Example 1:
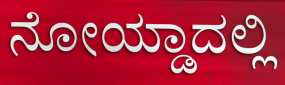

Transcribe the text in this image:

ನೋಯ್ಡಾದಲ್ಲಿ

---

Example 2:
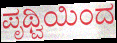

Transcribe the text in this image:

ಪೃಥ್ವಿಯಿಂದ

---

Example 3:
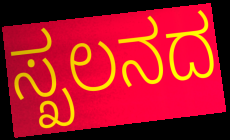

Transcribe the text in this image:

ಸ್ಖಲನದ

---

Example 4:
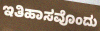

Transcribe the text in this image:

ಇತಿಹಾಸವೊಂದು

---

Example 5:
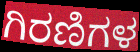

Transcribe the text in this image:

ಗಿರಣಿಗಳ